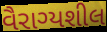
વૈરાગ્યશીલ